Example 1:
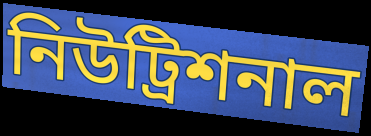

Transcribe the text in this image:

নিউট্রিশনাল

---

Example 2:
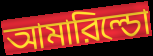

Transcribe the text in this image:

আমারিল্ডো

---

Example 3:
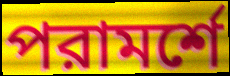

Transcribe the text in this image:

পরামর্শে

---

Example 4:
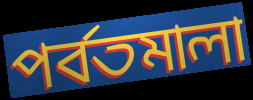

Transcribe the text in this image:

পর্বতমালা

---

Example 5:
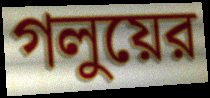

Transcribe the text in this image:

গলুয়ের